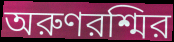
অরুণরশ্মির